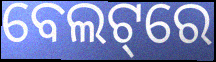
ବେଲଟ୍‌ରେ